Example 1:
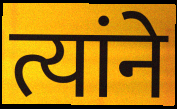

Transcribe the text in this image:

त्यांने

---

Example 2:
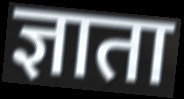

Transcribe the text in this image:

ज्ञाता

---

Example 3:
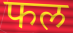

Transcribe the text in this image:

फल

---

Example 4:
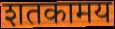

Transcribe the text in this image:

शतकामय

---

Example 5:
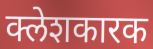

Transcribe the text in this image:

क्लेशकारक